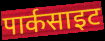
पार्कसाइट